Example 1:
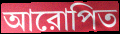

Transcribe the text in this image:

আরোপিত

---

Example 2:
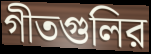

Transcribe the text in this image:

গীতগুলির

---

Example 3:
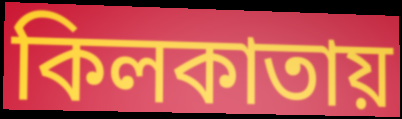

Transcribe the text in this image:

কিলকাতায়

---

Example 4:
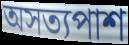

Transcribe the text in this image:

অসত্যপাশ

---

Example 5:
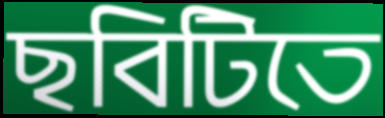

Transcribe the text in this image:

ছবিটিতে